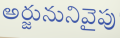
అర్జునునివైపు